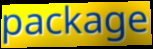
package